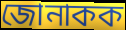
জোনাকক